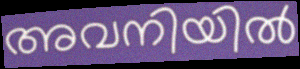
അവനിയിൽ